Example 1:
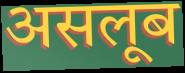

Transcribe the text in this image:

असलूब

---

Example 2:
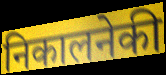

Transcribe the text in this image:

निकालनेकी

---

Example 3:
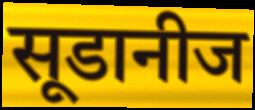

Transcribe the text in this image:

सूडानीज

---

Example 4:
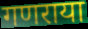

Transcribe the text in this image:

गणराया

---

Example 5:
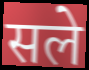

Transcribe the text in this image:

सले